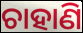
ଚାହାଣି